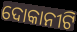
ଦୋକାନୀଟି